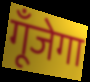
गूँजेगा